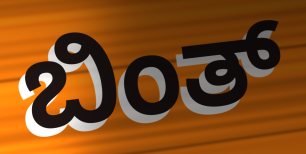
ಬಿಂತ್